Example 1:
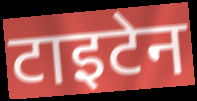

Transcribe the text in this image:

टाइटेन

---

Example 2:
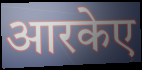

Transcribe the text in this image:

आरकेए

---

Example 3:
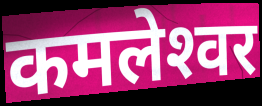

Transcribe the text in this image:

कमलेश्‍वर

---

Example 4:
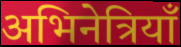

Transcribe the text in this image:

अभिनेत्रियाँ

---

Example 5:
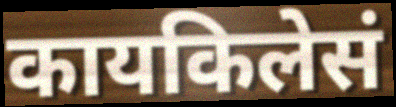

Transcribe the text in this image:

कायकिलेसं